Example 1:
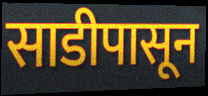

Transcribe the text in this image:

साडीपासून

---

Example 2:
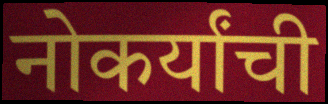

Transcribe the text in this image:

नोकर्यांची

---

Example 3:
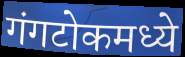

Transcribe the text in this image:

गंगटोकमध्ये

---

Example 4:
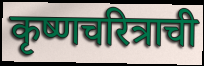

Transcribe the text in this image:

कृष्णचरित्राची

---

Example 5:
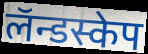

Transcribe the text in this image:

लॅन्डस्केप